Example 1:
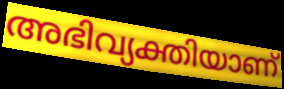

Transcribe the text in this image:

അഭിവ്യക്തിയാണ്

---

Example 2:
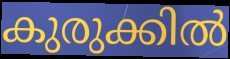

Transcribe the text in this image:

കുരുക്കിൽ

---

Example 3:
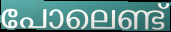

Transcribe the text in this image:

പോലെണ്ട്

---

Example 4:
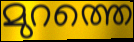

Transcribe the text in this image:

മുറത്തെ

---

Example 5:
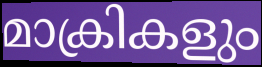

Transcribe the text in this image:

മാക്രികളും